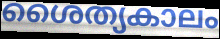
ശൈത്യകാലം